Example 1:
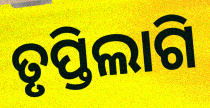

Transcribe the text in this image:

ତୃପ୍ତିଲାଗି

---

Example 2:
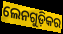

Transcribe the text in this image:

ଲେନଗୁଡ଼ିକର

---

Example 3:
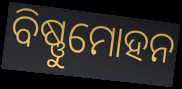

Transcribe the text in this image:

ବିଷ୍ଣୁମୋହନ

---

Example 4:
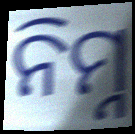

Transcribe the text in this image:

ନିମ୍ନ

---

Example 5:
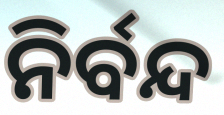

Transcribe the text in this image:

ନିର୍ବନ୍ଦ